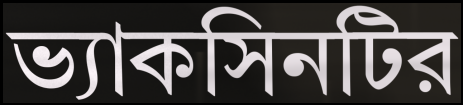
ভ্যাকসিনটির